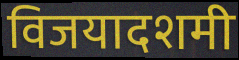
विजयादशमी